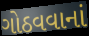
ગોઠવવાનાં